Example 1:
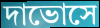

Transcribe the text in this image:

দাভোসে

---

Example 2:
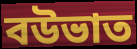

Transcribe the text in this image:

বউভাত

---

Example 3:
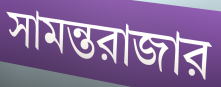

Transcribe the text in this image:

সামন্তরাজার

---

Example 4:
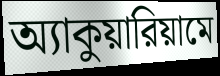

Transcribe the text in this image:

অ্যাকুয়ারিয়ামে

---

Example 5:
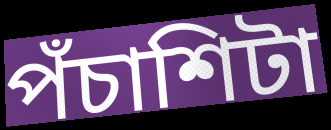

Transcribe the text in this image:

পঁচাশিটা